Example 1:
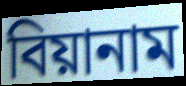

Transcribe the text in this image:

বিয়ানাম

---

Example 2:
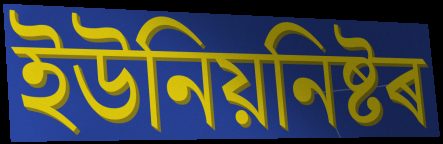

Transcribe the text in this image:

ইউনিয়নিষ্টৰ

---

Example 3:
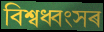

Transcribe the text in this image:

বিশ্বধ্বংসৰ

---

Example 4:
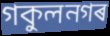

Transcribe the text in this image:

গকুলনগৰ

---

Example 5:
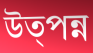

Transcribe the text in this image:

উত্পন্ন